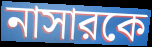
নাসারকে